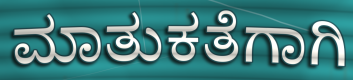
ಮಾತುಕತೆಗಾಗಿ